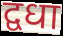
द्वधा